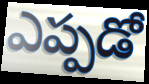
ఎప్పడో